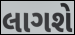
લાગશે